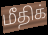
மீதிக்